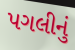
પગલીનું